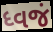
ધ્વજં